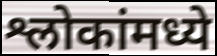
श्लोकांमध्ये